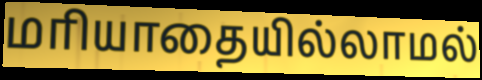
மரியாதையில்லாமல்